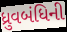
ધ્રુવબંધિની